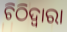
ଚିଠିଦ୍ୱାରା